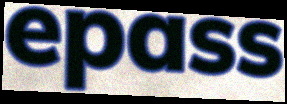
epass